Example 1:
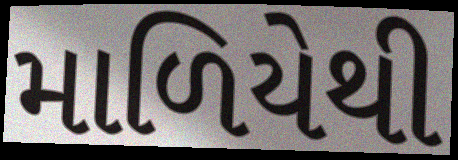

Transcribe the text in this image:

માળિયેથી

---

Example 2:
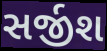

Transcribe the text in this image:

સર્જીશ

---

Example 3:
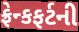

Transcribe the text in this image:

ફ્રેન્કફર્ટની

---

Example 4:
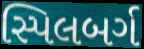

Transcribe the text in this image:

સ્પિલબર્ગ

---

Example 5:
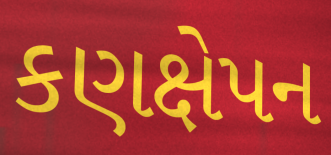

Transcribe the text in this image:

કણક્ષેપન